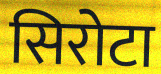
सिरोटा